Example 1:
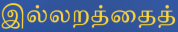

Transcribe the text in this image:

இல்லறத்தைத்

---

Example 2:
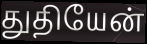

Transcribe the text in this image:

துதியேன்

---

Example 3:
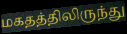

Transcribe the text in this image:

மகதத்திலிருந்து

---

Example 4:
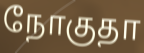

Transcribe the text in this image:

நோகுதா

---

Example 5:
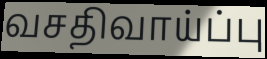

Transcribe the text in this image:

வசதிவாய்ப்பு